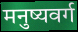
मनुष्यवर्ग